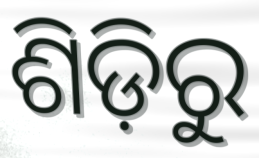
ଶିଡ଼ିରୁ